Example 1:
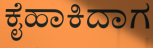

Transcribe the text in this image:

ಕೈಹಾಕಿದಾಗ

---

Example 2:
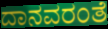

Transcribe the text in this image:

ದಾನವರಂತೆ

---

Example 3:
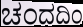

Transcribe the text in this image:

ಚಂದದಿಂ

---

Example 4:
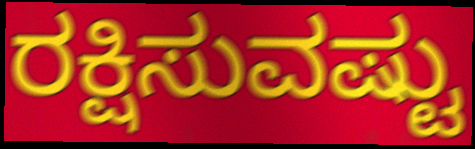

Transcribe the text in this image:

ರಕ್ಷಿಸುವಷ್ಟು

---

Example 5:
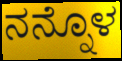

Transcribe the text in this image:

ನನ್ನೊಳ